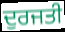
ਦੁਰਜਤੀ